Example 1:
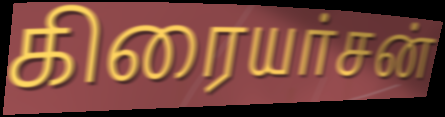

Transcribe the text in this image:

கிரையர்சன்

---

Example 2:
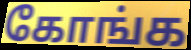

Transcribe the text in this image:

கோங்க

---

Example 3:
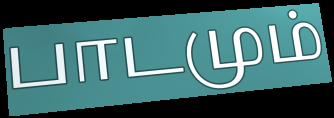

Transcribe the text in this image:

பாடமும்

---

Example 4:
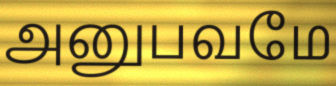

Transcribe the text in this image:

அனுபவமே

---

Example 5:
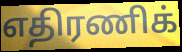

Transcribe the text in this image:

எதிரணிக்